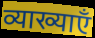
व्याख्याएँ